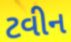
ટવીન